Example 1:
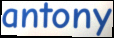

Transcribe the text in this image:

antony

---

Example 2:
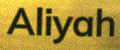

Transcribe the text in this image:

Aliyah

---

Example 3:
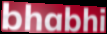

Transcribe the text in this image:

bhabhi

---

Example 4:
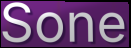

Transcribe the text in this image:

Sone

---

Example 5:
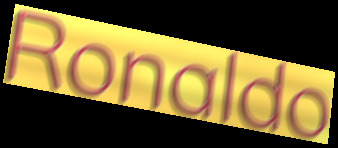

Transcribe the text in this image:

Ronaldo